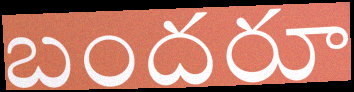
బందరూ